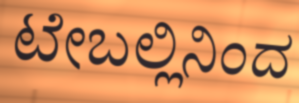
ಟೇಬಲ್ಲಿನಿಂದ